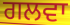
ਗਲਵਾ